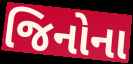
જિનોના